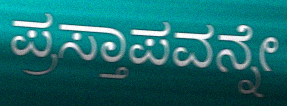
ಪ್ರಸ್ತಾಪವನ್ನೇ